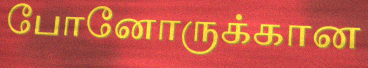
போனோருக்கான